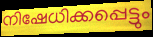
നിഷേധിക്കപ്പെട്ടും